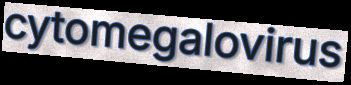
cytomegalovirus